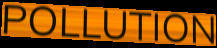
POLLUTION